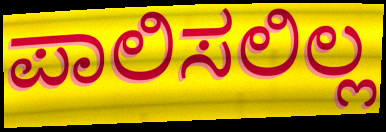
ಪಾಲಿಸಲಿಲ್ಲ